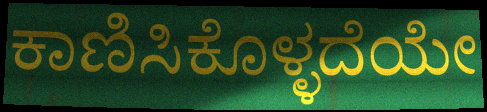
ಕಾಣಿಸಿಕೊಳ್ಳದೆಯೇ